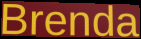
Brenda